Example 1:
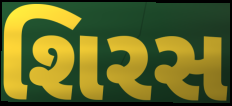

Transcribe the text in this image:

શિરસ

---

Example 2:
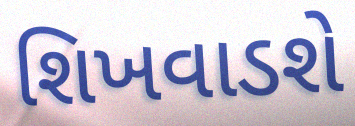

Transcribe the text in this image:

શિખવાડશે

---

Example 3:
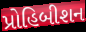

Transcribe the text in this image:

પ્રોહિબીશન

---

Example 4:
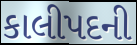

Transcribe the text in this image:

કાલીપદની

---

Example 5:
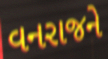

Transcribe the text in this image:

વનરાજને